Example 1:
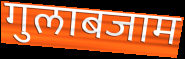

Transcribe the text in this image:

गुलाबजाम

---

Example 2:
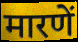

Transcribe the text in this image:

मारणें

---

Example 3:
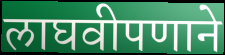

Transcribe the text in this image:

लाघवीपणाने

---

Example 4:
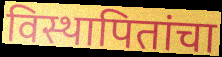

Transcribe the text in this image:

विस्थापितांचा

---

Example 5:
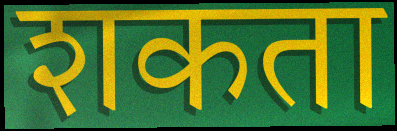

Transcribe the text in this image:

शकता